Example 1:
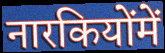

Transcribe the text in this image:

नारकियोंमें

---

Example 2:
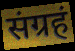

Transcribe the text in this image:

संग्रहं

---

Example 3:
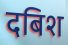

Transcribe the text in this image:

दबिश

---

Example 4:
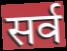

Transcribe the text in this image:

सर्व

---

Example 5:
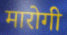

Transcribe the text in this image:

मारोगी